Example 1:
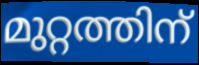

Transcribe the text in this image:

മുറ്റത്തിന്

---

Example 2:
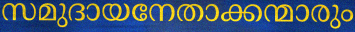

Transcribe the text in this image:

സമുദായനേതാക്കന്മാരും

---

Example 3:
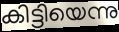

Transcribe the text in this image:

കിട്ടിയെന്നു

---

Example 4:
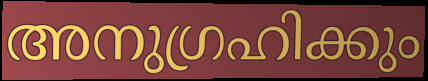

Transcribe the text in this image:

അനുഗ്രഹിക്കും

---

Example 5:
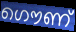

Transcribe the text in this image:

ഗൌണ്